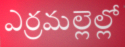
ఎర్రమల్లెల్లో